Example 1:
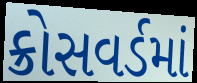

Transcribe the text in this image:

ક્રોસવર્ડમાં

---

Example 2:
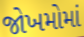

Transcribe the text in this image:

જોખમોમાં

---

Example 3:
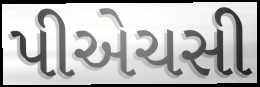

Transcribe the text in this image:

પીએચસી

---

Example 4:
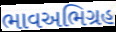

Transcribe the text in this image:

ભાવઅભિગ્રહ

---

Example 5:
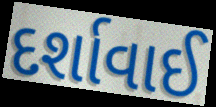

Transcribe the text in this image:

દર્શાવાઈ